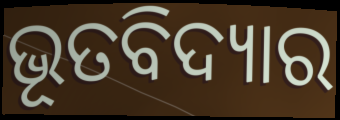
ଭୂତବିଦ୍ୟାର